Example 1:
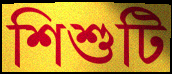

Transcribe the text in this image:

শিশুটি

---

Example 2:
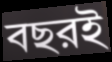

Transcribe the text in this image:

বছরই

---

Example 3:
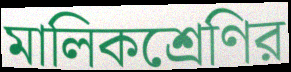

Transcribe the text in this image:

মালিকশ্রেণির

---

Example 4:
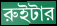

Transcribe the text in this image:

রুইটার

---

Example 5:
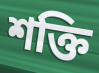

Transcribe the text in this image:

শক্তি